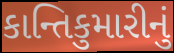
કાન્તિકુમારીનું